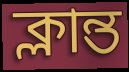
ক্লান্ত